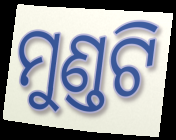
ମୁଣ୍ଡଟି